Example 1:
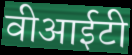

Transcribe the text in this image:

वीआईटी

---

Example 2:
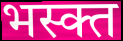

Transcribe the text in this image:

भस्क्त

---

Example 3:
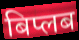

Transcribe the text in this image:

बिप्लब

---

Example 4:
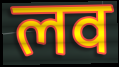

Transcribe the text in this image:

लव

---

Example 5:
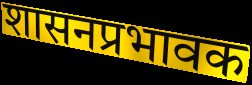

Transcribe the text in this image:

शासनप्रभावक